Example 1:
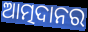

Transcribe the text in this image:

ଆତ୍ମଦାନର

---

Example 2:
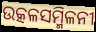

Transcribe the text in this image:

ଉତ୍କଳସମ୍ମିଳନୀ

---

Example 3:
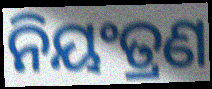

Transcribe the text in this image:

ନିୟଂତ୍ରଣ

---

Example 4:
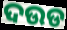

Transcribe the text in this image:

ଦଉଡ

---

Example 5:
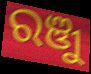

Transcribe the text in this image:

ରଞ୍ଜୁ